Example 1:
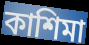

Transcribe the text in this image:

কাশিমা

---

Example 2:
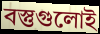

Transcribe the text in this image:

বস্তুগুলোই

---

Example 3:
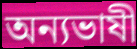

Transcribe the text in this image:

অন্যভাষী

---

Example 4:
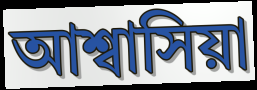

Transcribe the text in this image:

আশ্বাসিয়া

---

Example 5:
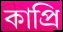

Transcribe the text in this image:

কাপ্রি